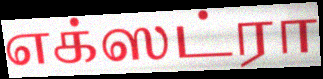
எக்ஸட்ரா